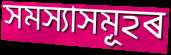
সমস্যাসমূহৰ